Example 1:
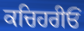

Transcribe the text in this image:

ਕਚਿਹਰੀਓਂ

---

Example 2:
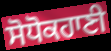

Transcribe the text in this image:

ਸੋਧੋਕਹਾਣੀ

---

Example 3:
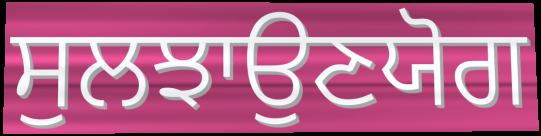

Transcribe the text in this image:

ਸੁਲਝਾਉਣਯੋਗ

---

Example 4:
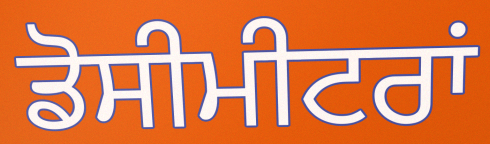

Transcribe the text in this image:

ਡੋਸੀਮੀਟਰਾਂ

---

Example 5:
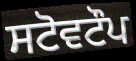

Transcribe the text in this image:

ਸਟੋਵਟੌਪ